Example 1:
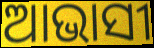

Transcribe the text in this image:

ଆଭାସୀ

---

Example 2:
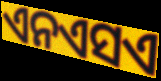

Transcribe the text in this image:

ଏନଏସଏ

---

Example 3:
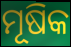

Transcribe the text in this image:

ମୂଷିକ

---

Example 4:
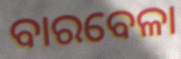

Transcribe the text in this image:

ବାରବେଳା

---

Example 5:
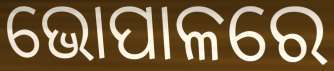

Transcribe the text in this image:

ଭୋପାଳରେ